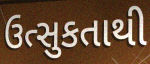
ઉત્સુકતાથી